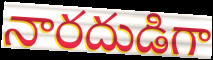
నారదుడిగా